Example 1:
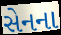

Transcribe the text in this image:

સેનના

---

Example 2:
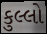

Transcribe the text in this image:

કુલ્લો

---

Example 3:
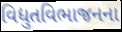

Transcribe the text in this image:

વિદ્યુતવિભાજનના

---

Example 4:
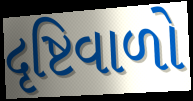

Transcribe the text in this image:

દૃષ્ટિવાળો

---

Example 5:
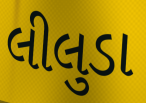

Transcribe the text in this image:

લીલુડા